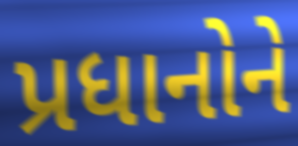
પ્રધાનોને